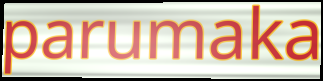
parumaka